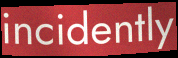
incidently